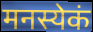
मनस्येकं